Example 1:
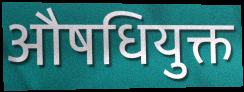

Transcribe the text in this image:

औषधियुक्त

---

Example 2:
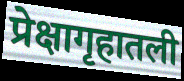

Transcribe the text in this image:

प्रेक्षागृहातली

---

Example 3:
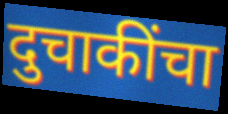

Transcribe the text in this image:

दुचाकींचा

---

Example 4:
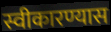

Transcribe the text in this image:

स्वीकारण्यास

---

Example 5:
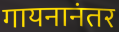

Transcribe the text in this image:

गायनानंतर